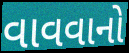
વાવવાનો